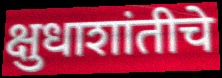
क्षुधाशांतीचे